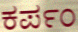
ಕರ್ಪಂ